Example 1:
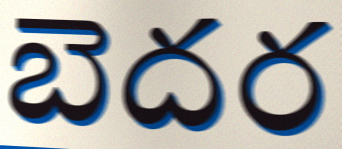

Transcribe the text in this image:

బెదర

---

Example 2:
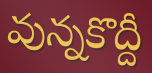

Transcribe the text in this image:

వున్నకొద్దీ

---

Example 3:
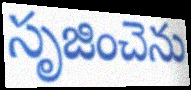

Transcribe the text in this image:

సృజించెను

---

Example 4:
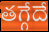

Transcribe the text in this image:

తగ్గేదే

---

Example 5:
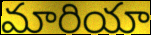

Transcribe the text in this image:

మారియా